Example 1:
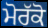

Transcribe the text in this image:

ਮੋਰੱਕੋ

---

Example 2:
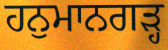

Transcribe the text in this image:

ਹਨੁਮਾਨਗੜ੍ਹ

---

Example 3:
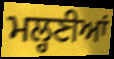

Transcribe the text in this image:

ਮਲ੍ਹਣੀਆਂ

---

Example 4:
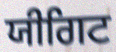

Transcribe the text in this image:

ਯੀਗਿਟ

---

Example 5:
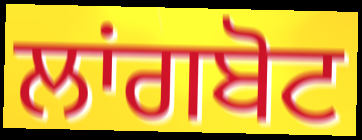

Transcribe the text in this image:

ਲਾਂਗਬੋਟ